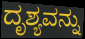
ದೃಶ್ಯವನ್ನು